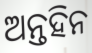
ଅନ୍ତହିନ